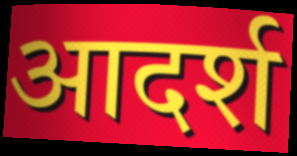
आदर्श